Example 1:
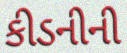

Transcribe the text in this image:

કીડનીની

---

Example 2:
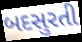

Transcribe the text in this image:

બદસુરતી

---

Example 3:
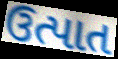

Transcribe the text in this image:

ઉત્પાત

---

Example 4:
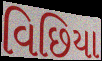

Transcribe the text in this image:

વિછિયા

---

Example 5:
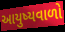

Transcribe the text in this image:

આયુષ્યવાળો